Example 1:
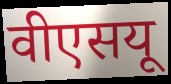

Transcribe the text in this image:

वीएसयू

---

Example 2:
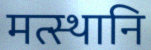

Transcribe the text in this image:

मत्स्थानि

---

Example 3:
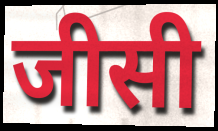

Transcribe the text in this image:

जीसी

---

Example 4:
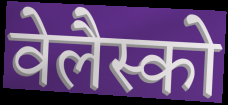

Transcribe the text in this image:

वेलैस्को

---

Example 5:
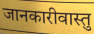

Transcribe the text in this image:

जानकारीवास्तु